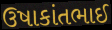
ઉષાકાંતભાઈ